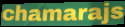
chamarajs